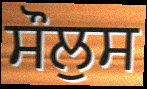
ਸੌਲੁਸ